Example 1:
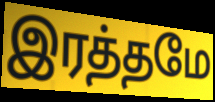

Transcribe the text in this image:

இரத்தமே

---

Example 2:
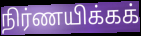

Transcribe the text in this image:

நிர்ணயிக்கக்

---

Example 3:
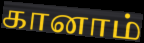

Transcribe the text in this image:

கானாம்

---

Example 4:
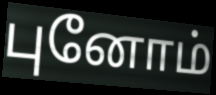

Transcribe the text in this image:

புனோம்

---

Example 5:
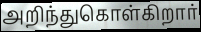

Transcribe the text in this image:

அறிந்துகொள்கிறார்